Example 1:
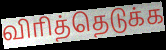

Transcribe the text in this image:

விரித்தெடுக்க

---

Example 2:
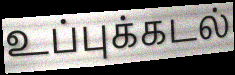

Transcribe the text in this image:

உப்புக்கடல்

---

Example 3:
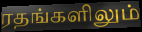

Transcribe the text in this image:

ரதங்களிலும்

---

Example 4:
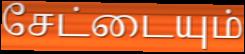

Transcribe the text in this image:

சேட்டையும்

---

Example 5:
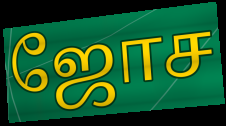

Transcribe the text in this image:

ஜோச